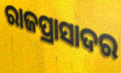
ରାଜପ୍ରାସାଦର